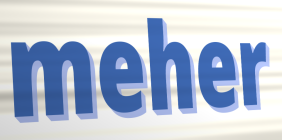
meher